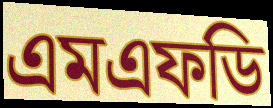
এমএফডি